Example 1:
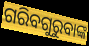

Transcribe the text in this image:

ଗରିବଗୁରୁବାଙ୍କ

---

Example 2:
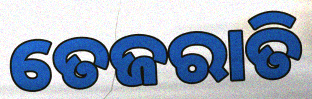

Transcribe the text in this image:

ତେଜରାତି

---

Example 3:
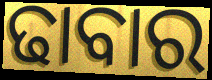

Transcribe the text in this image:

ଢାବାର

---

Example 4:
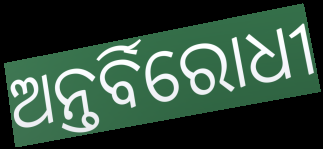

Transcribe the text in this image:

ଅନ୍ତର୍ବିରୋଧୀ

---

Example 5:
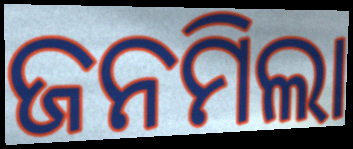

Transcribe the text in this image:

ଜନମିଲା